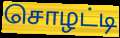
சொழட்டி